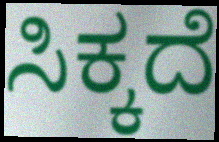
ಸಿಕ್ಕದೆ